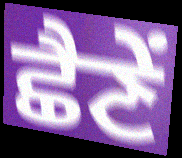
ਛੈਣੇਂ